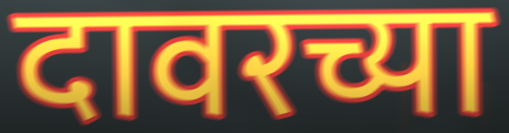
दावरच्या